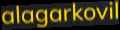
alagarkovil